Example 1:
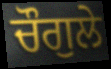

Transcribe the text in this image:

ਚੌਗੁਲੇ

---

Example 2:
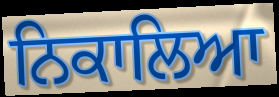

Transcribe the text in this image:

ਨਿਕਾਲਿਆ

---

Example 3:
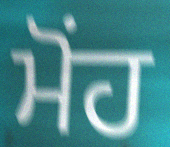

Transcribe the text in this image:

ਮੋਂਹ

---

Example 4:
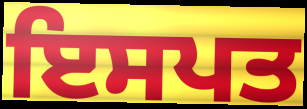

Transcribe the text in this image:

ਇਸਪਤ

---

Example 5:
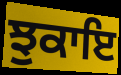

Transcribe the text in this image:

ਝੁਕਾਇ